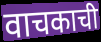
वाचकाची